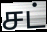
சட்